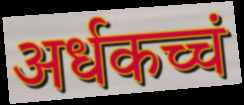
अर्धकच्चं